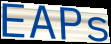
EAPs